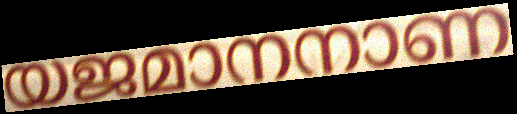
യജമാനനാണ